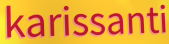
karissanti